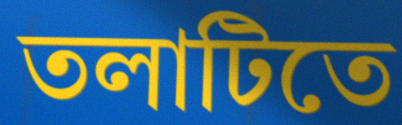
তলাটিতে